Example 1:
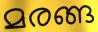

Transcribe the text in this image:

മരങ്ങ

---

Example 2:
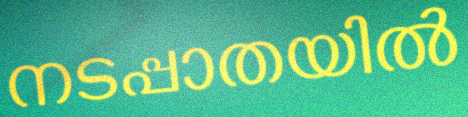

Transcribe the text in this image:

നടപ്പാതയിൽ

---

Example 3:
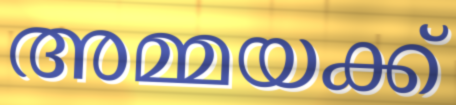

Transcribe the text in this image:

അമ്മയക്ക്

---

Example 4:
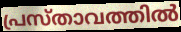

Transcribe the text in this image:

പ്രസ്താവത്തിൽ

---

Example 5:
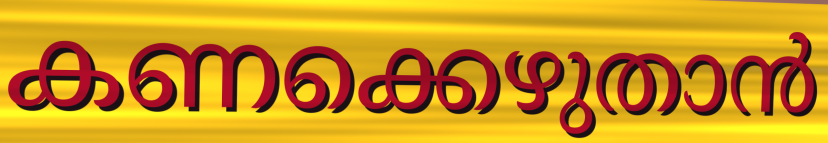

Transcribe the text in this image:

കണക്കെഴുതാൻ